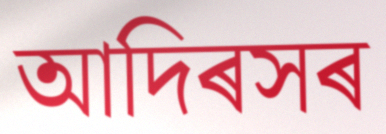
আদিৰসৰ